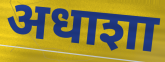
अधाशा